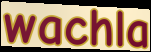
wachla